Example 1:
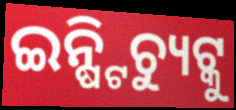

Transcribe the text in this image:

ଇନ୍ଷ୍ଟିଚ୍ୟୁଟ୍କୁ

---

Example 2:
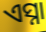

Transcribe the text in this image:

ଏସ୍ନା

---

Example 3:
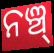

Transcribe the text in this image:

ନଞ୍ଚ୍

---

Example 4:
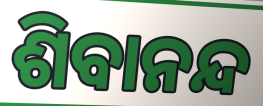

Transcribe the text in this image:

ଶିବାନନ୍ଦ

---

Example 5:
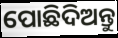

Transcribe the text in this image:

ପୋଛିଦିଅନ୍ତୁ